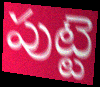
పుట్టె